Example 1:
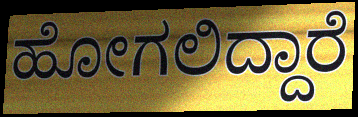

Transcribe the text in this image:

ಹೋಗಲಿದ್ದಾರೆ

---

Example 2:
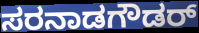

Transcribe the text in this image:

ಸರನಾಡಗೌಡರ್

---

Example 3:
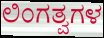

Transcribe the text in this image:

ಲಿಂಗತ್ವಗಳ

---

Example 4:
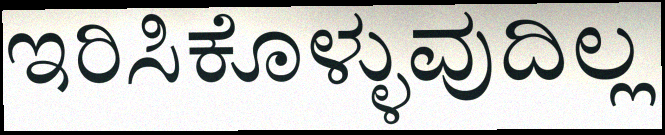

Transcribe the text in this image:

ಇರಿಸಿಕೊಳ್ಳುವುದಿಲ್ಲ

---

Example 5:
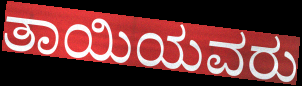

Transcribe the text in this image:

ತಾಯಿಯವರು